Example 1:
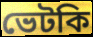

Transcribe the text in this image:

ভেটকি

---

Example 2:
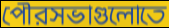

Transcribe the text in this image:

পৌরসভাগুলোতে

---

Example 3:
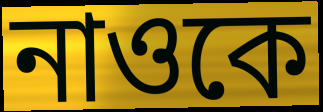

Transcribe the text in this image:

নাওকে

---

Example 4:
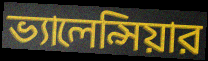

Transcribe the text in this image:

ভ্যালেন্সিয়ার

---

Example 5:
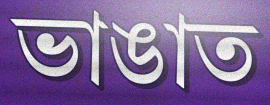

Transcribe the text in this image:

ভাঙাত